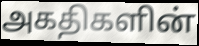
அகதிகளின்